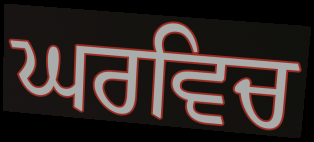
ਘਰਵਿਚ